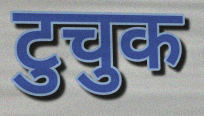
टुचुक